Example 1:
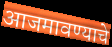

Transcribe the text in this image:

आजमावण्याचे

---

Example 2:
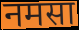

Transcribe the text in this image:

नमसा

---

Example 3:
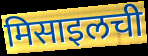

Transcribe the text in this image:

मिसाइलची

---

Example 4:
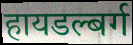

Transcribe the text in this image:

हायडल्बर्ग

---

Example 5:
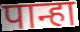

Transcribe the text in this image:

पान्हा